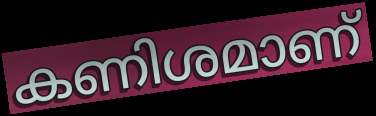
കണിശമാണ്